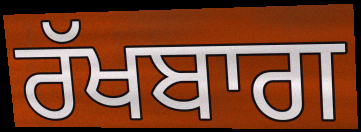
ਰੱਖਬਾਗ